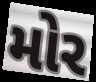
મોર